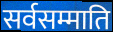
सर्वसम्माति